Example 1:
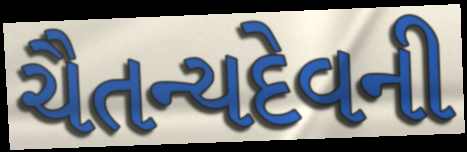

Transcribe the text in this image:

ચૈતન્યદેવની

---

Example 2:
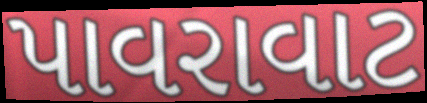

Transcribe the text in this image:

પાવરાવાટ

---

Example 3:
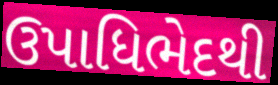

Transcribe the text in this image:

ઉપાધિભેદથી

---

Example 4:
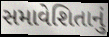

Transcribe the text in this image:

સમાવેશિતાનું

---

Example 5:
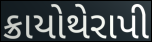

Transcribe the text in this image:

ક્રાયોથેરાપી